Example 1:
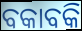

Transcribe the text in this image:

ବକାବକି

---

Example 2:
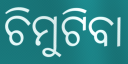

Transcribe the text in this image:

ଚିମୁଟିବା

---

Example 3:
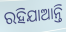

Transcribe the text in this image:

ରହିଯାଆନ୍ତି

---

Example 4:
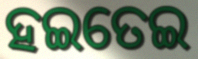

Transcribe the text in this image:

ହଇତେଇ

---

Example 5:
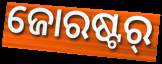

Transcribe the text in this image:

ଜୋରଷ୍ଟର୍